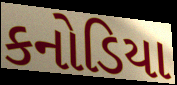
કનોડિયા